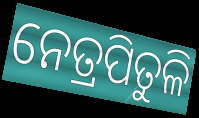
ନେତ୍ରପିତୁଳି